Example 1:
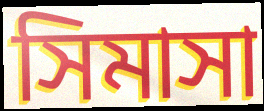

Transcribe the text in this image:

সিমাসা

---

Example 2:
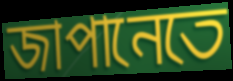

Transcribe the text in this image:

জাপানেতে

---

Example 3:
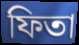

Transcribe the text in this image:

ফিতা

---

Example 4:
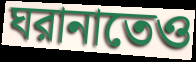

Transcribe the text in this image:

ঘরানাতেও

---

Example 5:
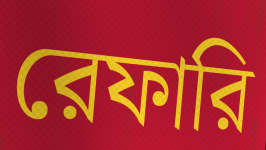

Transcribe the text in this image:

রেফারি